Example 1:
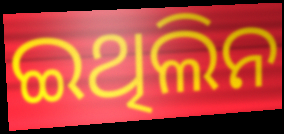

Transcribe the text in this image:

ଇଥିଲିନ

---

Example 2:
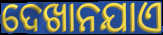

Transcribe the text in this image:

ଦେଖାନଯାଏ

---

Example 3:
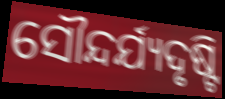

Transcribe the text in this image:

ସୌନ୍ଦର୍ଯ୍ୟଦୃଷ୍ଟି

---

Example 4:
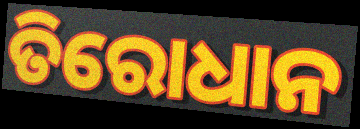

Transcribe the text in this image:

ତିରୋଧାନ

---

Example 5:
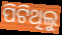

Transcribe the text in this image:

ପିଟିଥିଲୁ